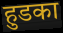
हुडका